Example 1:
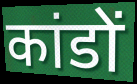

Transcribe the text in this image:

कांडों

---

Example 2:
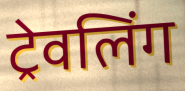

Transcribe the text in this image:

ट्रेवलिंग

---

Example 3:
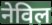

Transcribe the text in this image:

नेविल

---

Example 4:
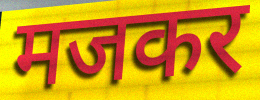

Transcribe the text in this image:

मजकर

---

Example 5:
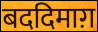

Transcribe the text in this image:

बददिमाग़